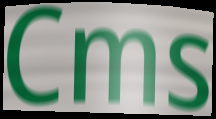
Cms